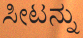
ಸೀಟನ್ನು